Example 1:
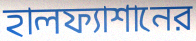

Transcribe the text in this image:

হালফ্যাশানের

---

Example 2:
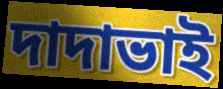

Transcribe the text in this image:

দাদাভাই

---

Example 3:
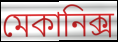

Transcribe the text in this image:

মেকানিক্স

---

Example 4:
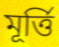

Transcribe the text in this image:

মূর্ত্তি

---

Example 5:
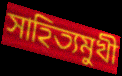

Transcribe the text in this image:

সাহিত্যমুখী